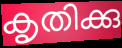
കൃതിക്കു